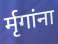
र्मृगांना